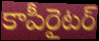
కాపీరైటర్